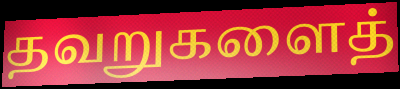
தவறுகளைத்